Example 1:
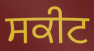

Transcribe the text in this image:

ਸਕੀਟ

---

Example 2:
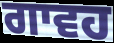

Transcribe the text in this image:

ਗਾਵਹ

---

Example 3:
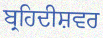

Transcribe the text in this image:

ਬ੍ਰਹਿਦੀਸ਼ਵਰ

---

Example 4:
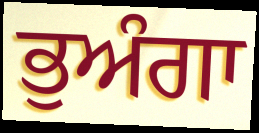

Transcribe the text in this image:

ਭੁਅੰਗਾ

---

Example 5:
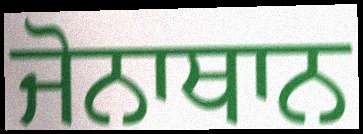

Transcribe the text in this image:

ਜੋਨਾਥਾਨ